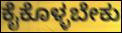
ಕೈಕೊಳ್ಳಬೇಕು